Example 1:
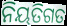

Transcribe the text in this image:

ନିୟତିଗତ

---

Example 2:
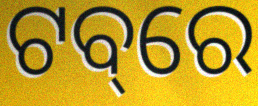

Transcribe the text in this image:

ଟବ୍‌ରେ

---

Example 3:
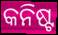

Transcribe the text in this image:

କନିଷ୍ଟ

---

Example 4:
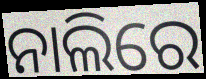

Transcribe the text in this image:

ନାଲିରେ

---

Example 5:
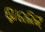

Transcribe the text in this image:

ଷ୍ଟାରଲିଙ୍ଗ୍